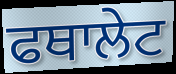
ਫਥਾਲੇਟ